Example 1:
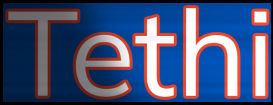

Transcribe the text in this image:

Tethi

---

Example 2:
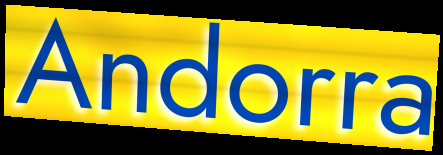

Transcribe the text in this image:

Andorra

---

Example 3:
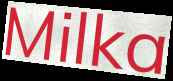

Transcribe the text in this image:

Milka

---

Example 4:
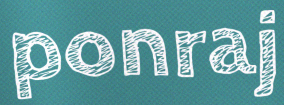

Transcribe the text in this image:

ponraj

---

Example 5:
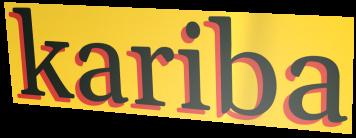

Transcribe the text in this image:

kariba